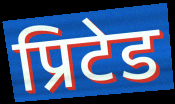
प्रिटेड